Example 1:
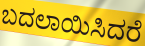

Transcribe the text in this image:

ಬದಲಾಯಿಸಿದರೆ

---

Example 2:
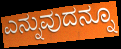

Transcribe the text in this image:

ಎನ್ನುವುದನ್ನೂ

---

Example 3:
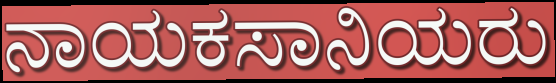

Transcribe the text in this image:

ನಾಯಕಸಾನಿಯರು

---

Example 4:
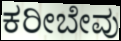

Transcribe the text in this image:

ಕರೀಬೇವು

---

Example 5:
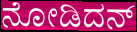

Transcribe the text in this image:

ನೋಡಿದನ್